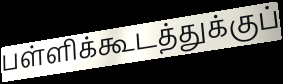
பள்ளிக்கூடத்துக்குப்